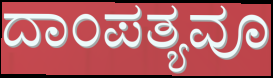
ದಾಂಪತ್ಯವೂ